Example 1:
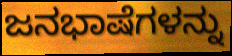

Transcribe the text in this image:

ಜನಭಾಷೆಗಳನ್ನು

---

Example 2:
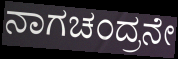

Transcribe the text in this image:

ನಾಗಚಂದ್ರನೇ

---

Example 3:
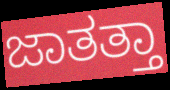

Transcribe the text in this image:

ಜಾತತ್ತಾ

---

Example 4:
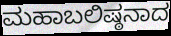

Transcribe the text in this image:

ಮಹಾಬಲಿಷ್ಠನಾದ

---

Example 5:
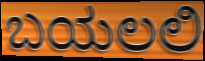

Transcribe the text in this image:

ಬಯಲಲಿ